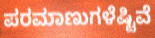
ಪರಮಾಣುಗಳೆಷ್ಟಿವೆ